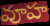
వూహ